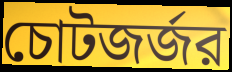
চোটজর্জর